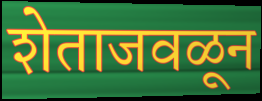
शेताजवळून